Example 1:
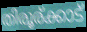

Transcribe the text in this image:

തിരൂര്ക്കാട്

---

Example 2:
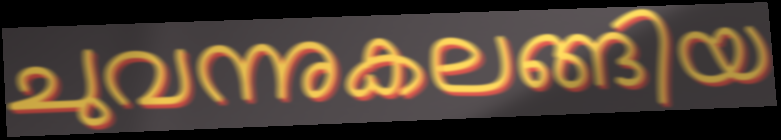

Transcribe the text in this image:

ചുവന്നുകലങ്ങിയ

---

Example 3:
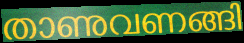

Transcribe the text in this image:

താണുവണങ്ങി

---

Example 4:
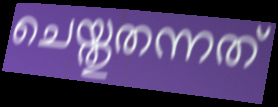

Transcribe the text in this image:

ചെയ്തുതന്നത്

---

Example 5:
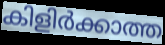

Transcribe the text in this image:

കിളിർക്കാത്ത